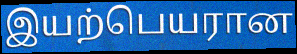
இயற்பெயரான